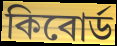
কিবোর্ড